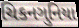
ચિકનગુનિયા